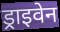
ड्राइवेन